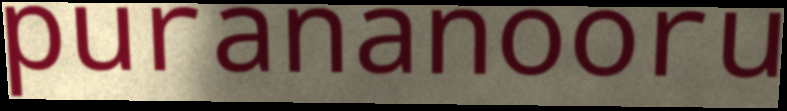
purananooru